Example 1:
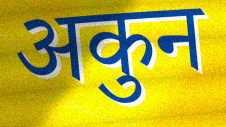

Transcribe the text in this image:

अकुन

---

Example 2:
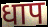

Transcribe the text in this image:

धाप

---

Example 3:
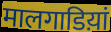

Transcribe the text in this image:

मालगाडिय़ां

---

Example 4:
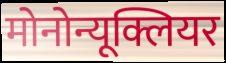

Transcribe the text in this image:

मोनोन्यूक्लियर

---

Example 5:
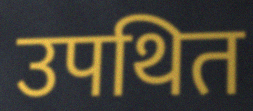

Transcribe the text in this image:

उपथित